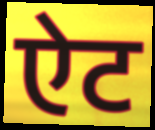
ऐट